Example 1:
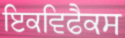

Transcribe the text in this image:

ਇਕਵਿਫੈਕਸ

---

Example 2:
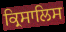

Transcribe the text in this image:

ਕ੍ਰਿਸਾਲਿਸ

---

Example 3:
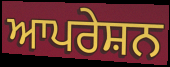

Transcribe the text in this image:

ਆਪਰੇਸ਼ਨ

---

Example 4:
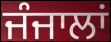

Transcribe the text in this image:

ਜੰਜਾਲਾਂ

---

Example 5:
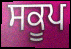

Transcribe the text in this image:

ਸਕੂਪ